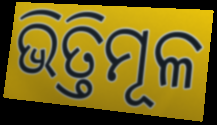
ଭିତ୍ତିମୂଳ